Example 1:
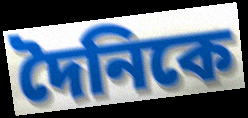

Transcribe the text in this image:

দৈনিকে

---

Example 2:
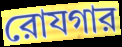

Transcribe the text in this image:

রোযগার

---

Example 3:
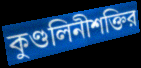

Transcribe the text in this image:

কুণ্ডলিনীশক্তির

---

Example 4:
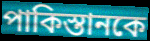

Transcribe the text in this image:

পাকিস্তানকে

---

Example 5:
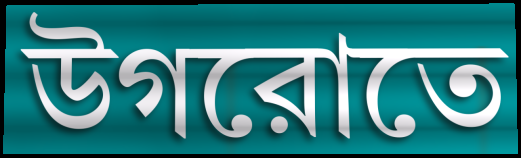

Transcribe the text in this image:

উগরোতে